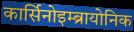
कार्सिनोइम्ब्रायोनिक